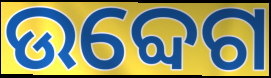
ଉବ୍ଦେଗ